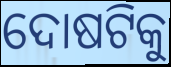
ଦୋଷଟିକୁ